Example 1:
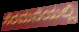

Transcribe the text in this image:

ಸೆರಮನೆಯಲ್ಲಿ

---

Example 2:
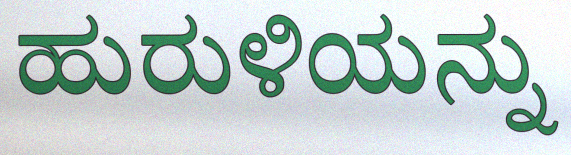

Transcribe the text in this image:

ಹುರುಳಿಯನ್ನು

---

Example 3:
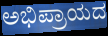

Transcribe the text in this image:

ಅಭಿಪ್ರಾಯದ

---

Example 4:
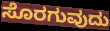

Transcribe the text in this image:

ಸೊರಗುವುದು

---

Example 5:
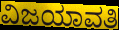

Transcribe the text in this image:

ವಿಜಯಾವತಿ